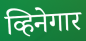
व्हिनेगार